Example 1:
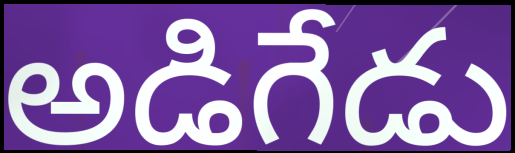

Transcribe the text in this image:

అడిగేడు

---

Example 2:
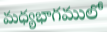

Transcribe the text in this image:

మధ్యభాగములో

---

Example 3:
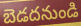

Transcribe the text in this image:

బెడదనుండి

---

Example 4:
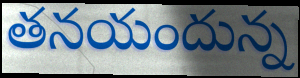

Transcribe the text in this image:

తనయందున్న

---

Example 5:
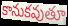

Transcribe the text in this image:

కానుకవుతూ